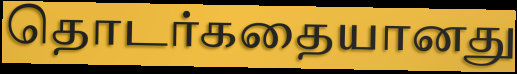
தொடர்கதையானது